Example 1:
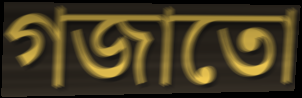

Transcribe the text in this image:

গজাতো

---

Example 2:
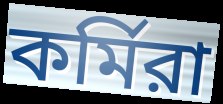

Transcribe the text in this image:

কর্মিরা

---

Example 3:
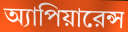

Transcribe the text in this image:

অ্যাপিয়ারেন্স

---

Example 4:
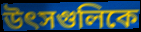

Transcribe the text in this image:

উৎসগুলিকে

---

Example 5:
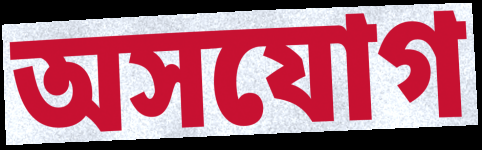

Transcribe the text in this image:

অসযোগ